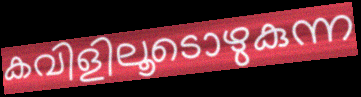
കവിളിലൂടൊഴുകുന്ന